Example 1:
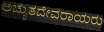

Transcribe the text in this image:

ಅಚ್ಯುತದೇವರಾಯರು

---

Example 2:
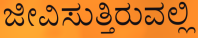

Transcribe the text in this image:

ಜೀವಿಸುತ್ತಿರುವಲ್ಲಿ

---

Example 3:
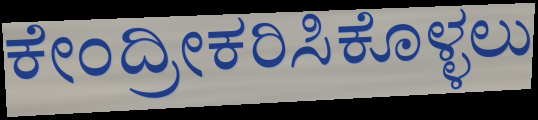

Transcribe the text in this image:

ಕೇಂದ್ರೀಕರಿಸಿಕೊಳ್ಳಲು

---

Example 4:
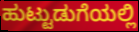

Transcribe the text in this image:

ಹುಟ್ಟುಡುಗೆಯಲ್ಲಿ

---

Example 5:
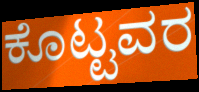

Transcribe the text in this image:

ಕೊಟ್ಟವರ